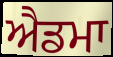
ਐਡਮਾ